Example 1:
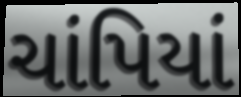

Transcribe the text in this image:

ચાંપિયાં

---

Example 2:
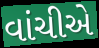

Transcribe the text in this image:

વાંચીએ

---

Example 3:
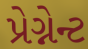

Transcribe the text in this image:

પ્રેગ્નેન્ટ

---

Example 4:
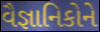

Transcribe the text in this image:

વૈજ્ઞાનિકોને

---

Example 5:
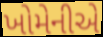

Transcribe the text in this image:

ખોમેનીએ